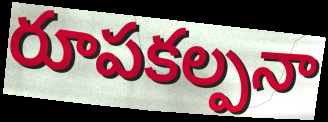
రూపకల్పనా